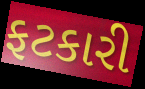
ફટકારી